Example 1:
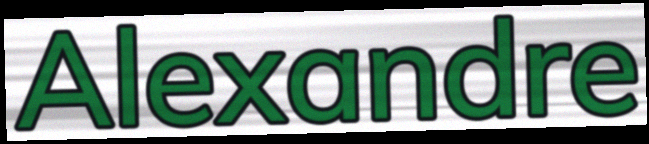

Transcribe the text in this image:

Alexandre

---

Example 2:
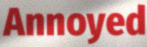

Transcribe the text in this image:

Annoyed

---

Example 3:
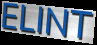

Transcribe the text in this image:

ELINT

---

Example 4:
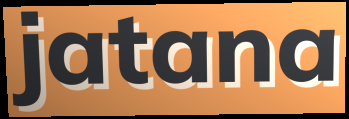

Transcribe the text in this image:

jatana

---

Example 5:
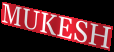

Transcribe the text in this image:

MUKESH